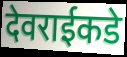
देवराईकडे